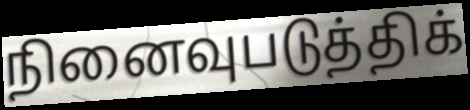
நினைவுபடுத்திக்